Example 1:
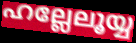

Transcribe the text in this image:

ഹല്ലേലൂയ്യ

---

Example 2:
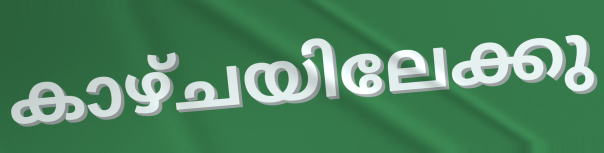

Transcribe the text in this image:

കാഴ്ചയിലേക്കു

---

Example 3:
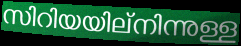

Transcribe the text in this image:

സിറിയയില്നിന്നുള്ള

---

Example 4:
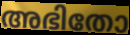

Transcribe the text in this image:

അഭിതോ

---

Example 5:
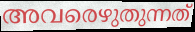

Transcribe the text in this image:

അവരെഴുതുന്നത്